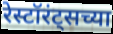
रेस्टॉरंट्सच्या